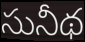
సునీథ